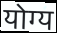
योग्य